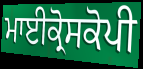
ਮਾਈਕ੍ਰੋਸਕੋਪੀ